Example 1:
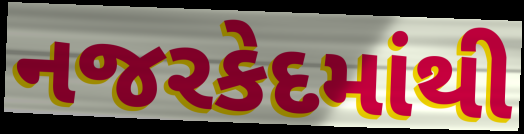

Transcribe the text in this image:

નજરકેદમાંથી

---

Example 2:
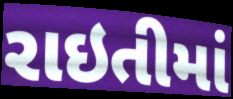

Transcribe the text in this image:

રાઇતીમાં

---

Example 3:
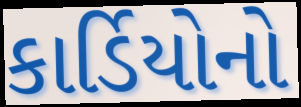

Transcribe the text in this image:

કાર્ડિયોનો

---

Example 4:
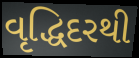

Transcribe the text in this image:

વૃદ્ધિદરથી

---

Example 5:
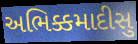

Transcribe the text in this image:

અભિક્કમાદીસુ